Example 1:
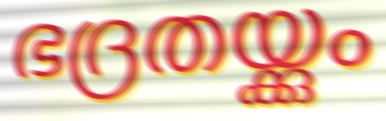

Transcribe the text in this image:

ഭദ്രതയ്ക്കും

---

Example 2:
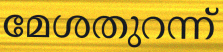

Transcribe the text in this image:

മേശതുറന്ന്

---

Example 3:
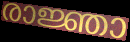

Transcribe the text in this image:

രാജ്ഞാ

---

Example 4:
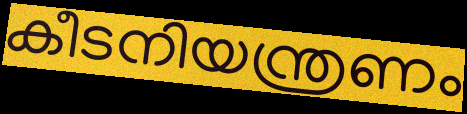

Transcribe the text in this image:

കീടനിയന്ത്രണം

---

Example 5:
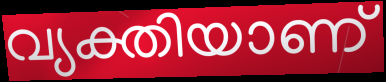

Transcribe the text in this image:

വ്യക്തിയാണ്